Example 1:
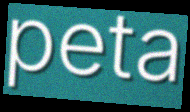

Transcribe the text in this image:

peta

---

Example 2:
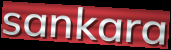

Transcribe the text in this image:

sankara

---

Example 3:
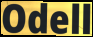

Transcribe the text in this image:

Odell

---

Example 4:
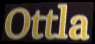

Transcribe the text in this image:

Ottla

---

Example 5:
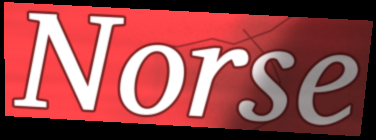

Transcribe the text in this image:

Norse